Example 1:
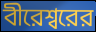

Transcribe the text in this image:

বীরেশ্বরের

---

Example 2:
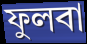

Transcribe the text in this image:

ফুলবা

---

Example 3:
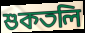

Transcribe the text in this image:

শুকতলি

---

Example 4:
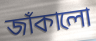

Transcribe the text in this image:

জাঁকালো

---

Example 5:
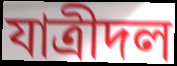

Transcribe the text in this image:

যাত্রীদল